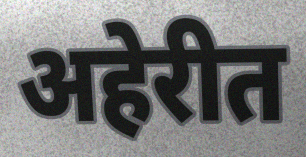
अहेरीत